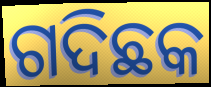
ଗଦିଛକ